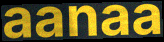
aanaa